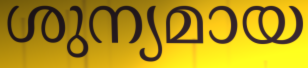
ശുന്യമായ